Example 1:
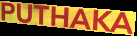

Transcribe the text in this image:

PUTHAKA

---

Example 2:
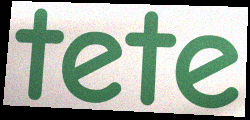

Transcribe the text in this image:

tete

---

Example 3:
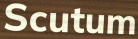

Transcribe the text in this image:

Scutum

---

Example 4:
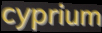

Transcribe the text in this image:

cyprium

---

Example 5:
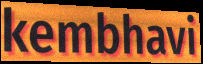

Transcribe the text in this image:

kembhavi